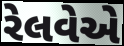
રેલવેએ